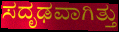
ಸದೃಢವಾಗಿತ್ತು